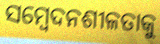
ସମ୍ବେଦନଶୀଳତାକୁ